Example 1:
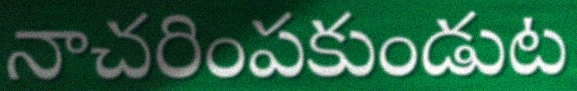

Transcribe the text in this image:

నాచరింపకుండుట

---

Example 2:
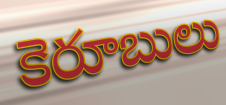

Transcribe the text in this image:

కెరూబులు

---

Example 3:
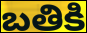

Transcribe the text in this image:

బతికి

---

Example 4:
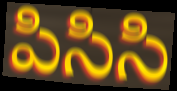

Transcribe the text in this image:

పిసిసి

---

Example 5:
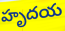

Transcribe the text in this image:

హృదయ